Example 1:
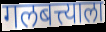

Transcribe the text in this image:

गलबत्त्याला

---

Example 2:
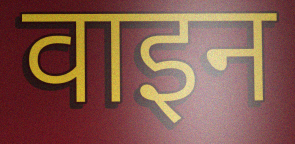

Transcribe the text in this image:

वाइन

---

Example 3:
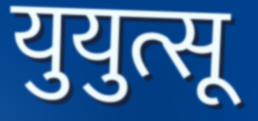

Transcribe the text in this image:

युयुत्सू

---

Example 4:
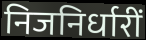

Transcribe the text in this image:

निजनिर्धारीं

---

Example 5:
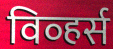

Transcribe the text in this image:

विव्हर्स